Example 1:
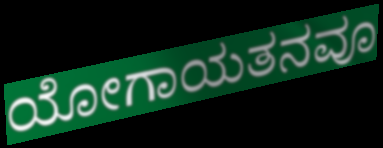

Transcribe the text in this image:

ಯೋಗಾಯತನವೂ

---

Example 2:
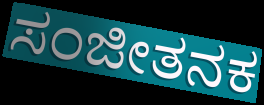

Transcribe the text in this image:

ಸಂಜೀತನಕ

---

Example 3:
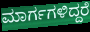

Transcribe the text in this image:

ಮಾರ್ಗಗಳಿದ್ದರೆ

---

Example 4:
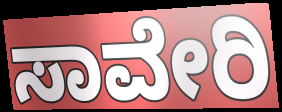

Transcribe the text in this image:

ಸಾವೇರಿ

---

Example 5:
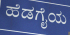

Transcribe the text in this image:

ಹೆಡಗೈಯ